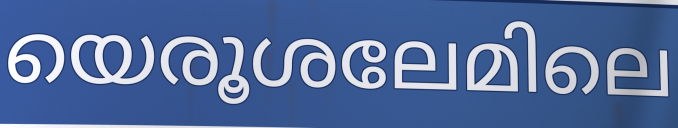
യെരൂശലേമിലെ